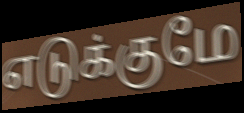
எடுக்குமே